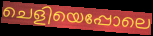
ചെളിയെപ്പോലെ